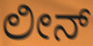
ಲೀನ್